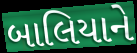
બાલિયાને